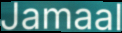
Jamaal